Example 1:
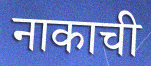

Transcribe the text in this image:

नाकाची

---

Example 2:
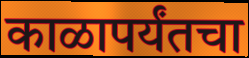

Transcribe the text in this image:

काळापर्यंतचा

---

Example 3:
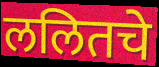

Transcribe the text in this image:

ललितचे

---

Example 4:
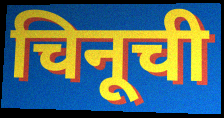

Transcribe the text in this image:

चिनूची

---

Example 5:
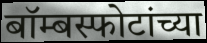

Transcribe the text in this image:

बॉम्बस्फोटांच्या